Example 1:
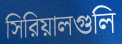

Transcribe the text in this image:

সিরিয়ালগুলি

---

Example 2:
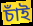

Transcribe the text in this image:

চাঁই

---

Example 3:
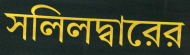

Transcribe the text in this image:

সলিলদ্বারের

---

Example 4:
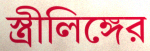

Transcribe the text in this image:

স্ত্রীলিঙ্গের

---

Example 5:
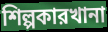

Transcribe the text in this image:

শিল্পকারখানা